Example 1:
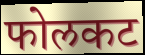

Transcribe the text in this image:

फोलकट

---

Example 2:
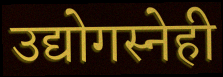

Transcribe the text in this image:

उद्योगस्नेही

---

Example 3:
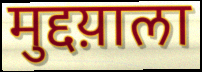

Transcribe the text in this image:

मुद्दय़ाला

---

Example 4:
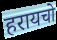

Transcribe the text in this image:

हरायचो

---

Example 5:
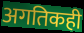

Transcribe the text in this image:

अगतिकही